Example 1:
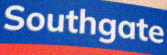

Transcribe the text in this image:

Southgate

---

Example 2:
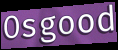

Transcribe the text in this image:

Osgood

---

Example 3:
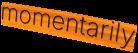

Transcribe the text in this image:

momentarily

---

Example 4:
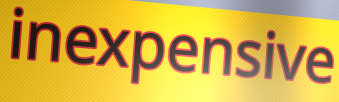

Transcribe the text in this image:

inexpensive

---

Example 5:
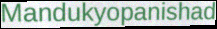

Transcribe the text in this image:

Mandukyopanishad